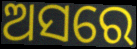
ଅସରେ